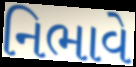
નિભાવે